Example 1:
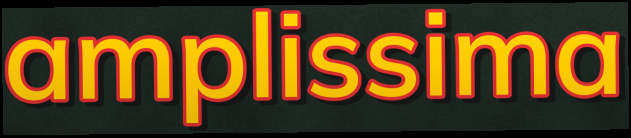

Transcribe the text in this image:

amplissima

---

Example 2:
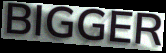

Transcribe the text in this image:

BIGGER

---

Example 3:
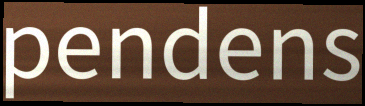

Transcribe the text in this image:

pendens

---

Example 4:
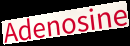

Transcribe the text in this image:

Adenosine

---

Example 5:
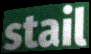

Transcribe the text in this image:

stail